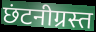
छंटनीग्रस्त